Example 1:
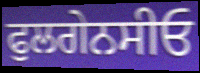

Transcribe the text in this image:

ਫੁਲਗੇਨਸੀਓ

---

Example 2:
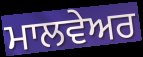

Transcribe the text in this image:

ਮਾਲਵੇਅਰ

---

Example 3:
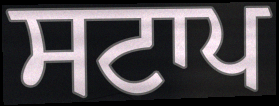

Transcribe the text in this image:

ਸਟਾਪ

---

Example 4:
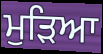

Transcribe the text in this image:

ਮੁੜਿਆ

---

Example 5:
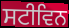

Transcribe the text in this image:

ਸਟੀਵਿਨ